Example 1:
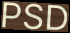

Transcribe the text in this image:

PSD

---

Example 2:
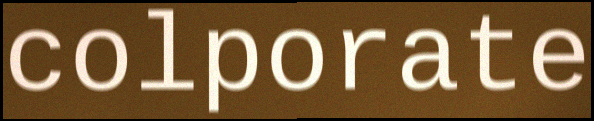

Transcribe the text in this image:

colporate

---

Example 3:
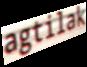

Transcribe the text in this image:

agtilak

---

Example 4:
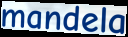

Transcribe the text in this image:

mandela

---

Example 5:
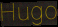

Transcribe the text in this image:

Hugo